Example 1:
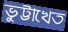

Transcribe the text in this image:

ভুট্টাখেত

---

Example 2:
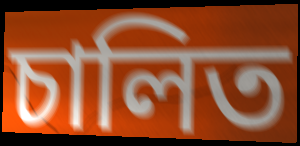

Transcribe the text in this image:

চালিত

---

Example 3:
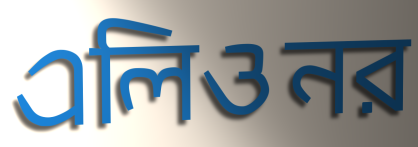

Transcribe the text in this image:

এলিওনর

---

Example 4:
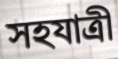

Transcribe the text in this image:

সহযাত্রী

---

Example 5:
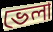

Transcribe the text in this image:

ভেলা